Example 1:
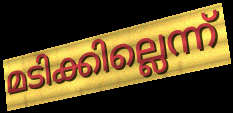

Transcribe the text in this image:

മടിക്കില്ലെന്ന്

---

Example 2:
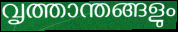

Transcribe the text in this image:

വൃത്താന്തങ്ങളും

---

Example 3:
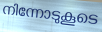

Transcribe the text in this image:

നിന്നോടുകൂടെ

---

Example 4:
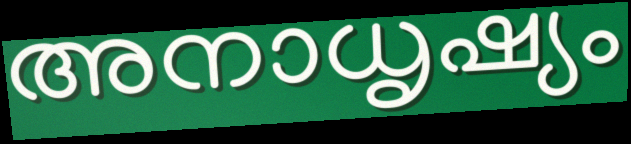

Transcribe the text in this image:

അനാധൃഷ്യം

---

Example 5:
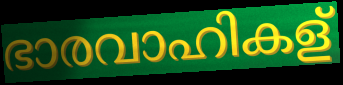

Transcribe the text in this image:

ഭാരവാഹികള്